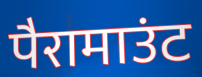
पैरामाउंट